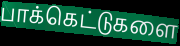
பாக்கெட்டுகளை